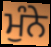
ਮੁੰਨੇ